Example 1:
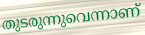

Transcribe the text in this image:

തുടരുന്നുവെന്നാണ്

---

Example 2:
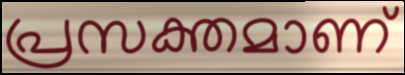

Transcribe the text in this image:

പ്രസക്തമാണ്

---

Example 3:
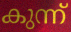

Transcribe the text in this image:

കുന്ന്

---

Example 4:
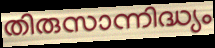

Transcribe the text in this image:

തിരുസാന്നിദ്ധ്യം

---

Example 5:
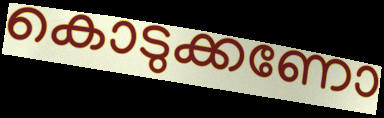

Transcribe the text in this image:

കൊടുക്കണോ